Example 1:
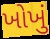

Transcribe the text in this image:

ખોખું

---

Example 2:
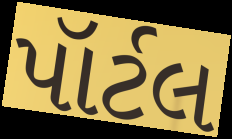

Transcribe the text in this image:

પૉર્ટલ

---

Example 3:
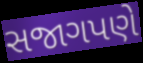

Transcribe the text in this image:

સજાગપણે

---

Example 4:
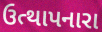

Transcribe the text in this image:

ઉત્થાપનારા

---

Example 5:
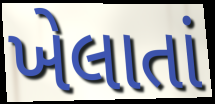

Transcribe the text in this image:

ખેલાતાં